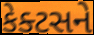
કેક્ટસને